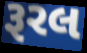
રૂરલ